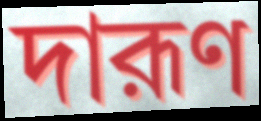
দারূণ